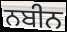
ਨਬੀਨ